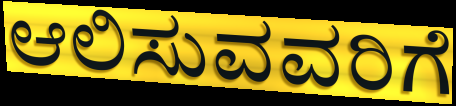
ಆಲಿಸುವವರಿಗೆ